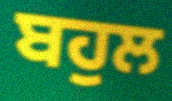
ਬਹੁਲ